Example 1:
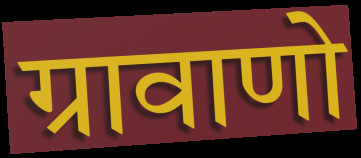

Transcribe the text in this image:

ग्रावाणो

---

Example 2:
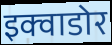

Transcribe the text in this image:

इक्‍वाडोर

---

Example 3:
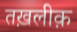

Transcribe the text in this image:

तख़लीक़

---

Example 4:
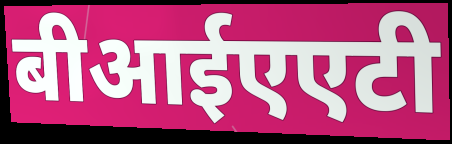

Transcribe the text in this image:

बीआईएएटी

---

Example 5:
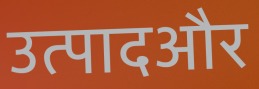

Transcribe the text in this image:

उत्पादऔर